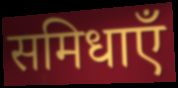
समिधाएँ